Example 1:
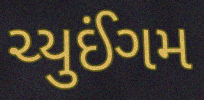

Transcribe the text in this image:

ચ્યુઈંગમ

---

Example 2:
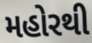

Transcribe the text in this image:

મહોરથી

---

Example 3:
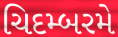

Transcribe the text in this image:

ચિદમ્બરમે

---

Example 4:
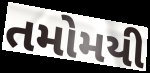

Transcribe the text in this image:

તમોમયી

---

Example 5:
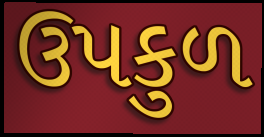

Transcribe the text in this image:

ઉપકુળ